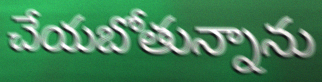
చేయబోతున్నాను